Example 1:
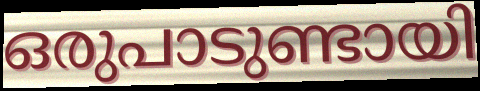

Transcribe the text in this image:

ഒരുപാടുണ്ടായി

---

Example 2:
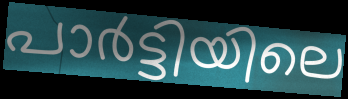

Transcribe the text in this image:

പാർട്ടിയിലെ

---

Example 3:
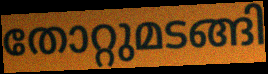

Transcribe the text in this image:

തോറ്റുമടങ്ങി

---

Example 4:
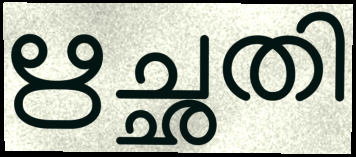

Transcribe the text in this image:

ഋച്ഛതി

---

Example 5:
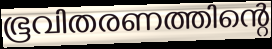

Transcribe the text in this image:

ഭൂവിതരണത്തിന്റെ